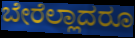
ಬೇರೆಲ್ಲಾದರೂ